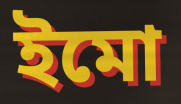
ইমো